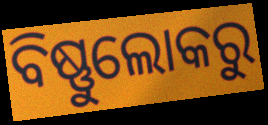
ବିଷ୍ଣୁଲୋକରୁ